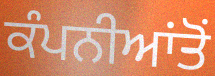
ਕੰਪਨੀਆਂਤੋਂ